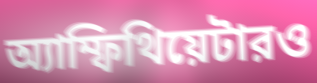
অ্যাম্ফিথিয়েটারও